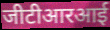
जीटीआरआई